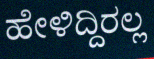
ಹೇಳಿದ್ದಿರಲ್ಲ